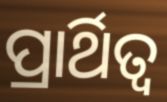
ପ୍ରାର୍ଥିତ୍ୱ